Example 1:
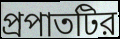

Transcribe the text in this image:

প্রপাতটির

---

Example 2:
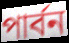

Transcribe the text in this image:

পার্বন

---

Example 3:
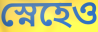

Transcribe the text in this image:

স্নেহেও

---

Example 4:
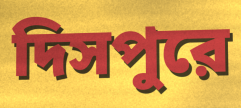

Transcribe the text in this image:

দিসপুরে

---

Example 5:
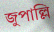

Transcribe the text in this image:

জুপাল্লি